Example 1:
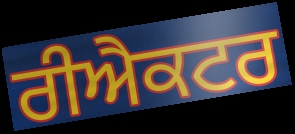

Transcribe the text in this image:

ਰੀਐਕਟਰ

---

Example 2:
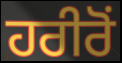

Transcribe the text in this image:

ਹਰੀਰੋਂ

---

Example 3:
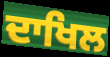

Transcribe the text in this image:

ਦਾਖਿਲ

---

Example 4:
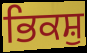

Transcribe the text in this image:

ਭਿਕਸ਼ੁ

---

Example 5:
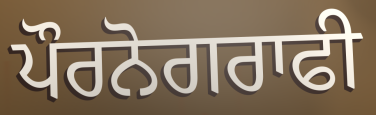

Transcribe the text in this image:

ਪੌਰਨੋਗਰਾਫੀ